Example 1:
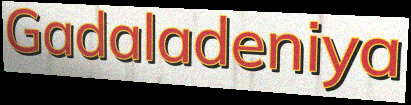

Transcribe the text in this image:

Gadaladeniya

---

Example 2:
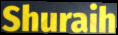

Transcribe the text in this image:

Shuraih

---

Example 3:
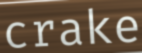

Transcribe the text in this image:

crake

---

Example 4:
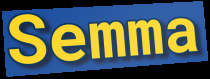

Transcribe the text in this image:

Semma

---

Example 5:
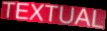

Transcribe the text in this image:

TEXTUAL